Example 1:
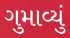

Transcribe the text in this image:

ગુમાવ્યું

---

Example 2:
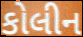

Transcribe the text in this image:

કોલીન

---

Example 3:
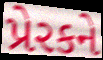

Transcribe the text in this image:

પ્રેરકને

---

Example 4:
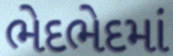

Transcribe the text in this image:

ભેદભેદમાં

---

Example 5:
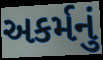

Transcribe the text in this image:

અકર્મનું